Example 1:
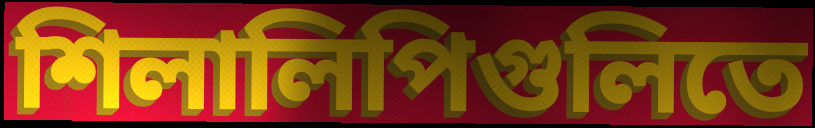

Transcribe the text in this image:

শিলালিপিগুলিতে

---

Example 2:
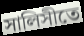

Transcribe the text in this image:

সালিসীতে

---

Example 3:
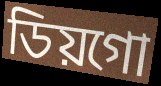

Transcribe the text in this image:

ডিয়গো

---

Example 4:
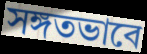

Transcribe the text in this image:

সঙ্গতভাবে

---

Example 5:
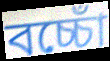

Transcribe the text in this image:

বচ্চোঁ